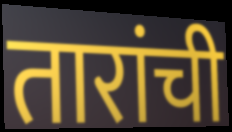
तारांची